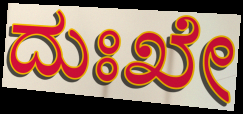
ದುಃಖೇ